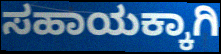
ಸಹಾಯಕ್ಕಾಗಿ